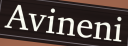
Avineni